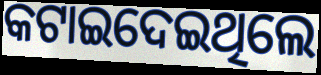
କଟାଇଦେଇଥିଲେ